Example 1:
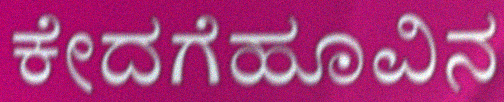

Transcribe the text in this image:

ಕೇದಗೆಹೂವಿನ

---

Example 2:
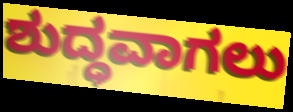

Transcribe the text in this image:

ಶುದ್ಧವಾಗಲು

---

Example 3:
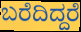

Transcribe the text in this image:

ಬರೆದಿದ್ದರೆ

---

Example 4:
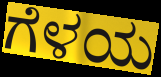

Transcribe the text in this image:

ಗೆಳಯ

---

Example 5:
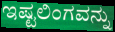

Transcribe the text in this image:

ಇಷ್ಟಲಿಂಗವನ್ನು